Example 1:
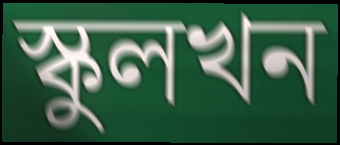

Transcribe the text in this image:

স্কুলখন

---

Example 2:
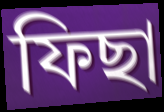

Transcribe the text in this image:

ফিছা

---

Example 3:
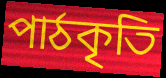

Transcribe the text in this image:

পাঠকৃতি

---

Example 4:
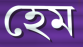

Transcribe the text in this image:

হেম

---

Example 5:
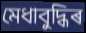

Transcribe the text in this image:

মেধাবুদ্ধিৰ